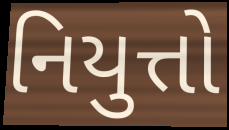
નિયુત્તો